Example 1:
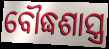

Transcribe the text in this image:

ବୌଦ୍ଧଶାସ୍ତ୍ର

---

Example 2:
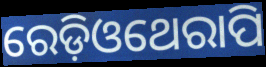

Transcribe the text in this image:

ରେଡ଼ିଓଥେରାପି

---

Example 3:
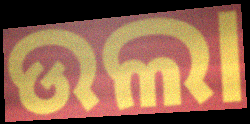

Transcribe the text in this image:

ଉଲା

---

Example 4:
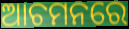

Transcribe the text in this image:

ଆଚମନରେ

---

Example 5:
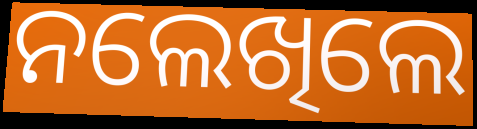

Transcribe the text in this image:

ନଲେଖିଲେ